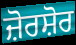
ਜ਼ੋਰਸ਼ੋਰ